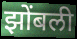
झोंबली